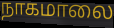
நாகமாலை